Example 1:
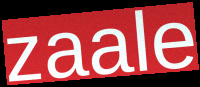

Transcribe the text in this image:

zaale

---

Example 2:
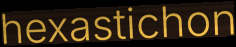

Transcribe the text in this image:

hexastichon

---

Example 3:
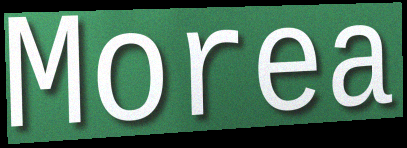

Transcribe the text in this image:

Morea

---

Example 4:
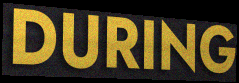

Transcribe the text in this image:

DURING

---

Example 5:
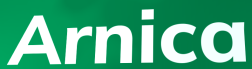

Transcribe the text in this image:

Arnica